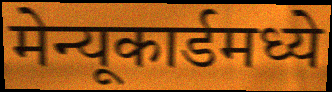
मेन्यूकार्डमध्ये